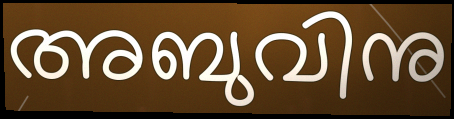
അബുവിനു